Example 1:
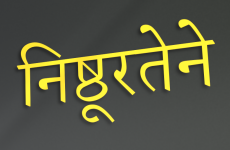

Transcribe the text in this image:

निष्ठूरतेने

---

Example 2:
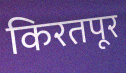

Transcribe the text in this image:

किरतपूर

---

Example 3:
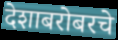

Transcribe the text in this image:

देशाबरोबरचे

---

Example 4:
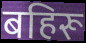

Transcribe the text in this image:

बहिरू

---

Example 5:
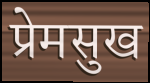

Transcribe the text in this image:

प्रेमसुख